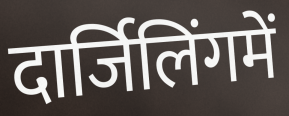
दार्जिलिंगमें